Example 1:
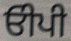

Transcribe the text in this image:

ਓੀਪੀ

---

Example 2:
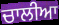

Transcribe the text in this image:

ਚਾਲੀਆ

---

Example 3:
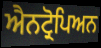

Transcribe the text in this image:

ਐਨਟ੍ਰੋਪਿਅਨ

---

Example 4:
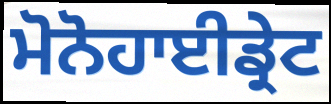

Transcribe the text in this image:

ਮੋਨੋਹਾਈਡ੍ਰੇਟ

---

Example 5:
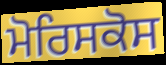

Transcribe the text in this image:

ਮੋਰਿਸਕੋਸ